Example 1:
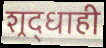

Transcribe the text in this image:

श्रद्धाही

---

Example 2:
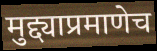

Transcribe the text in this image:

मुद्द्याप्रमाणेच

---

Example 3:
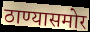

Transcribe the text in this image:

ठाण्यासमोर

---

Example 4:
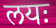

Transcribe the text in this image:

लयः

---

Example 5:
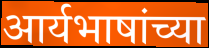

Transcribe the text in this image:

आर्यभाषांच्या